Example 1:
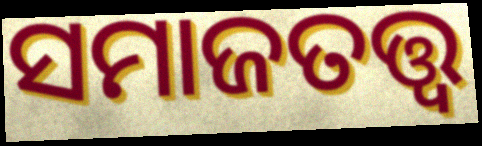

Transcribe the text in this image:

ସମାଜତତ୍ତ୍ବ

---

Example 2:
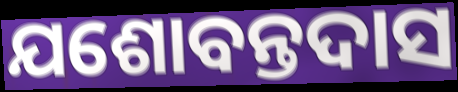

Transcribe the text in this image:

ଯଶୋବନ୍ତଦାସ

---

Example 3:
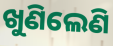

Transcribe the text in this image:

ଖୁଣିଲେଣି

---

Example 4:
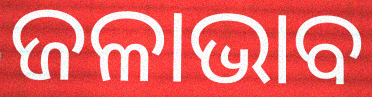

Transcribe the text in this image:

ଜଳାଭାବ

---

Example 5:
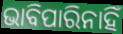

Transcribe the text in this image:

ଭାବିପାରିନାହିଁ